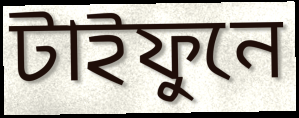
টাইফুনে